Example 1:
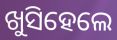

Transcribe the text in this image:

ଖୁସିହେଲେ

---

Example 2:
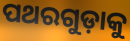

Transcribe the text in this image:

ପଥରଗୁଡ଼ାକୁ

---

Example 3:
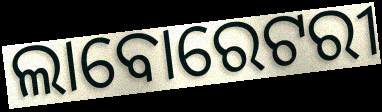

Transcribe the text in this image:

ଲାବୋରେଟରୀ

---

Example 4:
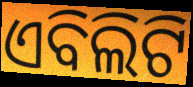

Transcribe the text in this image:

ଏବିଲିଟି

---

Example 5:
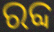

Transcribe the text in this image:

ରବ୍ଦ